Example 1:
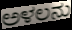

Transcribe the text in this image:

ಅಳಲನು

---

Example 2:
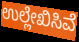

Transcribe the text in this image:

ಉಲ್ಲೇಖಿಸಿವೆ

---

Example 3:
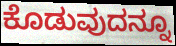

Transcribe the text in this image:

ಕೊಡುವುದನ್ನೂ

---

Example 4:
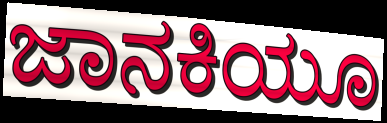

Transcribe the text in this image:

ಜಾನಕಿಯೂ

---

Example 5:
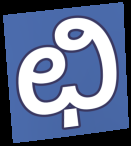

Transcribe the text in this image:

ಛಿ